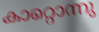
കാറ്റൊന്നു